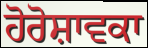
ਹੋਰੋਸ਼ਾਵਕਾ